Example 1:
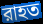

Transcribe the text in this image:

রাহত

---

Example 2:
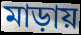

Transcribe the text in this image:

মাড়ায়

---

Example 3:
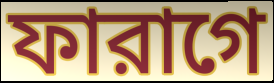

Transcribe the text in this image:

ফারাগে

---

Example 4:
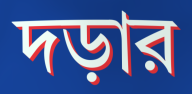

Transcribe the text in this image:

দড়ার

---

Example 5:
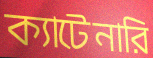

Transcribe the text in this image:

ক্যাটেনারি